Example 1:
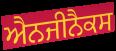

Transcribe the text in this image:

ਐਨਜੀਨੈਕਸ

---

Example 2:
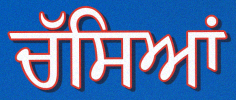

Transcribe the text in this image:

ਚੱਸਿਆਂ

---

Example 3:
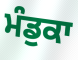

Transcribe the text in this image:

ਮੰਡੁਕਾ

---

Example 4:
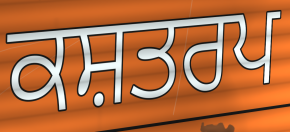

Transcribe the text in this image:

ਕਸ਼ਤਰਪ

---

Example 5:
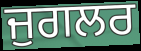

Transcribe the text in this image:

ਜੁਗਲਰ